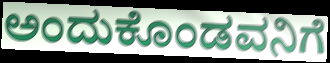
ಅಂದುಕೊಂಡವನಿಗೆ